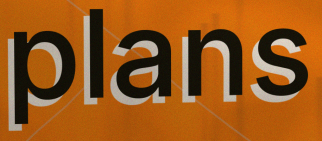
plans